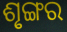
ଶୃଙ୍ଗର